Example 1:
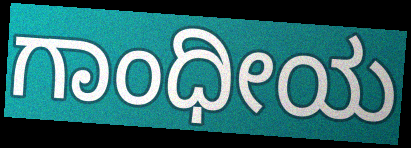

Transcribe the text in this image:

ಗಾಂಧೀಯ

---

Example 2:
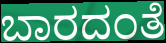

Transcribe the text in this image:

ಬಾರದಂತೆ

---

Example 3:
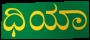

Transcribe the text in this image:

ಧಿಯಾ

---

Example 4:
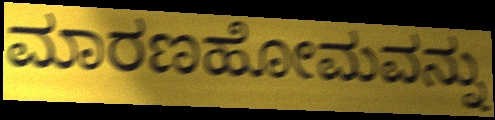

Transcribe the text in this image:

ಮಾರಣಹೋಮವನ್ನು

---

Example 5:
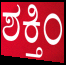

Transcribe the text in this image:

ಶಕ್ತಿಂ